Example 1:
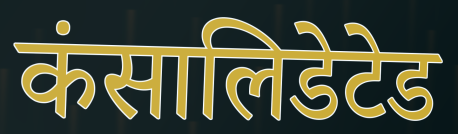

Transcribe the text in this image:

कंसालिडेटेड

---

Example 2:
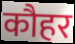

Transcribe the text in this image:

कौहर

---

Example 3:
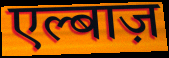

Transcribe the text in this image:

एल्बाज़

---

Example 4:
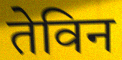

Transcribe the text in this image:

तेविन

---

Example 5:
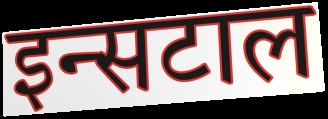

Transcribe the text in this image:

इन्सटाल